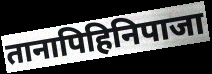
तानापिहिनिपाजा